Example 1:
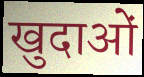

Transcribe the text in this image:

खुदाओं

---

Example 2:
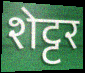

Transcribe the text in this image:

शेट्टर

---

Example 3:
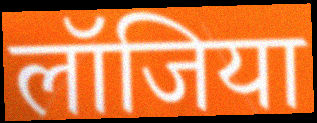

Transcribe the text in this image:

लॉजिया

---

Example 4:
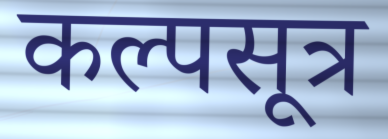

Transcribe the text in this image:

कल्पसूत्र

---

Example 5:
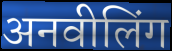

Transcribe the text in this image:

अनवीलिंग